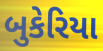
બુકેરિયા